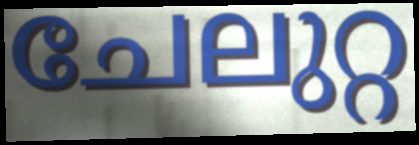
ചേലുറ്റ